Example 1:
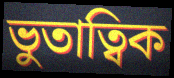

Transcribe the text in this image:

ভুতাত্বিক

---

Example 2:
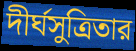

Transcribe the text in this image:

দীর্ঘসুত্রিতার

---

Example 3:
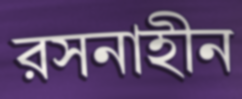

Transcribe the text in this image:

রসনাহীন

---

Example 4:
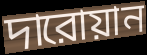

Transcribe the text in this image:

দারোয়ান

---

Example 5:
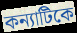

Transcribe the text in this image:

কন্যাটিকে